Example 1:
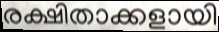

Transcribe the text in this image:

രക്ഷിതാക്കളായി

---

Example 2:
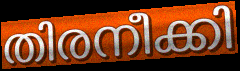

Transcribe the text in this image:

തിരനീക്കി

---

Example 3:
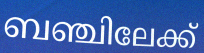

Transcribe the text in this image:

ബഞ്ചിലേക്ക്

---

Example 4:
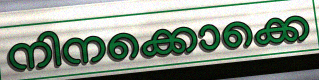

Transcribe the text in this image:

നിനക്കൊക്കെ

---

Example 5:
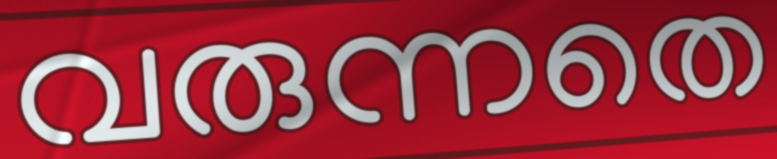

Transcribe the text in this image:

വരുന്നതെ